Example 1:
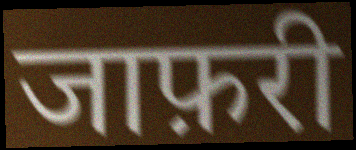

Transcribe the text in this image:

जाफ़री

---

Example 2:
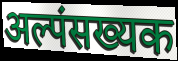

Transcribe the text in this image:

अल्पंसख्यक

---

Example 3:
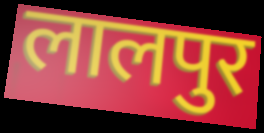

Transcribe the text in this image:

लालपुर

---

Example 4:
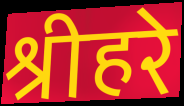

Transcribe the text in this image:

श्रीहरे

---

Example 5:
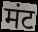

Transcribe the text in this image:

मंट